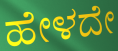
ಹೇಳದೇ